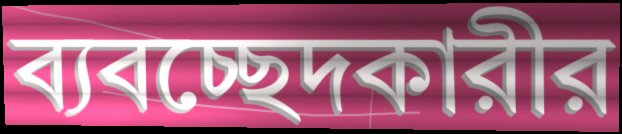
ব্যবচ্ছেদকারীর